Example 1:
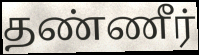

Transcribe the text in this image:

தண்ணீர்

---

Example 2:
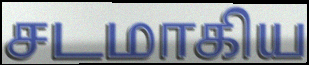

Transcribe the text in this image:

சடமாகிய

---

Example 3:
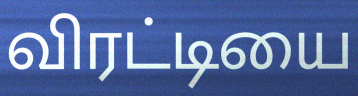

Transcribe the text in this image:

விரட்டியை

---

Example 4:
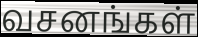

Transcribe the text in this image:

வசனங்கள்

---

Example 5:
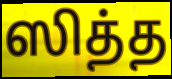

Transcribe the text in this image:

ஸித்த